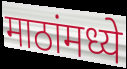
माठांमध्ये